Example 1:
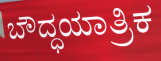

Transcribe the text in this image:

ಬೌದ್ಧಯಾತ್ರಿಕ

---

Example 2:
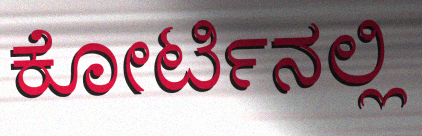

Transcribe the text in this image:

ಕೋರ್ಟಿನಲ್ಲಿ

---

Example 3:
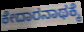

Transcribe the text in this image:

ಕೇದಾರನಾಥಕ್ಕೆ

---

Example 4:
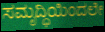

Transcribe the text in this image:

ಸಮೃದ್ಧಿಯಿಂದಲೇ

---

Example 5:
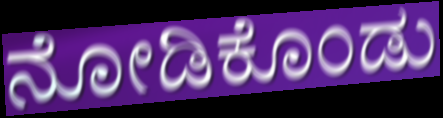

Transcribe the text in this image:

ನೋಡಿಕೊಂಡು